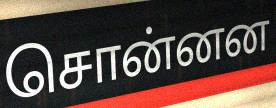
சொன்னன